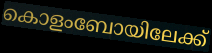
കൊളംബോയിലേക്ക്